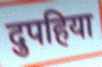
दुपहिया